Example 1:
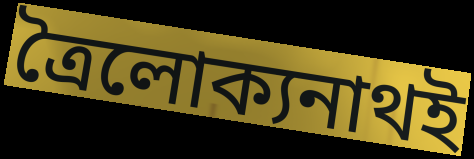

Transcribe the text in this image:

ত্রৈলোক্যনাথই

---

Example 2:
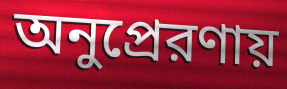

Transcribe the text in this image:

অনুপ্রেরণায়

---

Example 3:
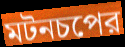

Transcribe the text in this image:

মটনচপের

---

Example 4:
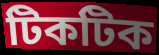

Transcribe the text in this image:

টিকটিক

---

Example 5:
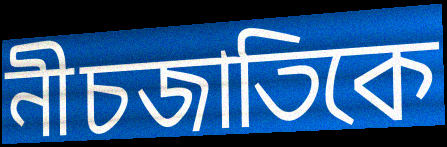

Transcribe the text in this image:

নীচজাতিকে